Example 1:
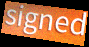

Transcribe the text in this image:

signed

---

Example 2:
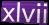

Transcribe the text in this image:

xlvii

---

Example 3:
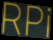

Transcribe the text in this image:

RPi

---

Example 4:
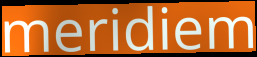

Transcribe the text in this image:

meridiem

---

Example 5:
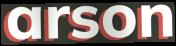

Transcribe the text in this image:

arson